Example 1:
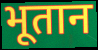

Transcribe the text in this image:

भूतान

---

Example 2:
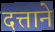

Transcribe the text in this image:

दत्ताने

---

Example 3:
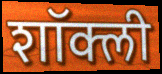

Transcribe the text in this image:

शॉक्ली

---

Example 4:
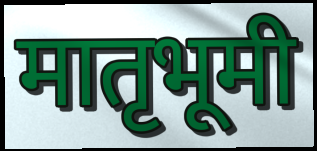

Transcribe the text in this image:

मातृभूमी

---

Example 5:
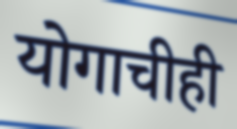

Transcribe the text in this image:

योगाचीही